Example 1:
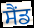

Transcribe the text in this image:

ਸੈਂਡ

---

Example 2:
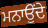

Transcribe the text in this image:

ਮਨਾਉਂਦੇ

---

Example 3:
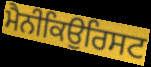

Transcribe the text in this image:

ਮੈਨੀਕਿਉਰਿਸਟ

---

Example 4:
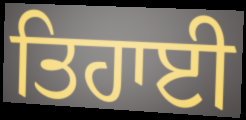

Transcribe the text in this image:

ਤਿਹਾਈ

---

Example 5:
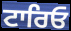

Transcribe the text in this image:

ਟਾਰਿਓ